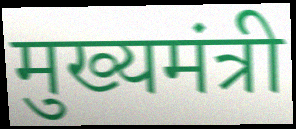
मुख्यमंत्री